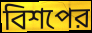
বিশপের